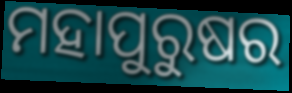
ମହାପୁରୁଷର